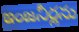
ఇంజనీర్లను